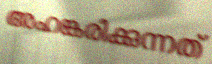
അഹങ്കരിക്കുന്നത്